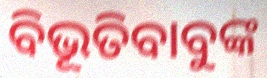
ବିଭୂତିବାବୁଙ୍କ